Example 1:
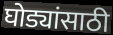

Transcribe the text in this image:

घोड्यांसाठी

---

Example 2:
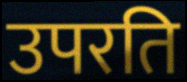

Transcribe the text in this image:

उपरति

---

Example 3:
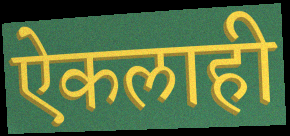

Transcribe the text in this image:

ऐकलाही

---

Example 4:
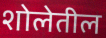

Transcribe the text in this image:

शोलेतील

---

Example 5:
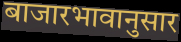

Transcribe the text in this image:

बाजारभावानुसार